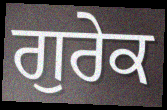
ਗੁਰੇਕ